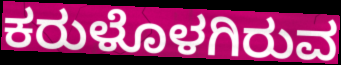
ಕರುಳೊಳಗಿರುವ